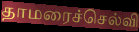
தாமரைச்செல்வி